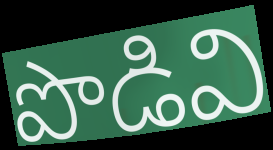
పొడివి